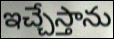
ఇచ్చేస్తాను